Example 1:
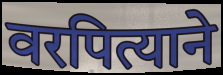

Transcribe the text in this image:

वरपित्याने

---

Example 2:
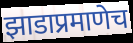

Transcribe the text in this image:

झाडाप्रमाणेच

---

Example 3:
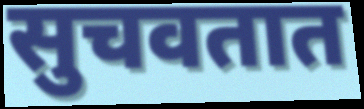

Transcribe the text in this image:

सुचवतात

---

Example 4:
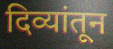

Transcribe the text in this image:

दिव्यांतून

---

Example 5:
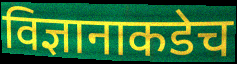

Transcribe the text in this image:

विज्ञानाकडेच